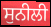
ਸੁਨੀਲੀ